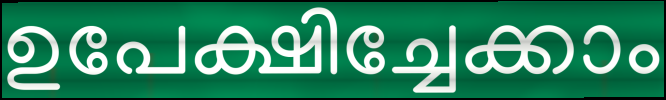
ഉപേക്ഷിച്ചേക്കാം